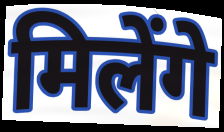
मिलेंगे